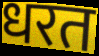
धरत